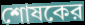
শোষকের